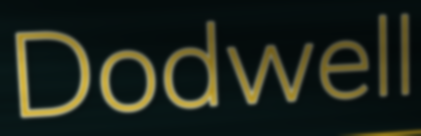
Dodwell